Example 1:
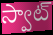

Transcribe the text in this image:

స్వాట్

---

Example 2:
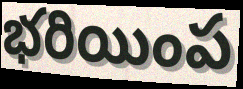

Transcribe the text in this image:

భరియింప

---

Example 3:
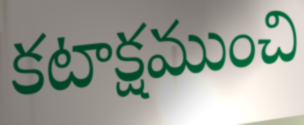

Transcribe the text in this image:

కటాక్షముంచి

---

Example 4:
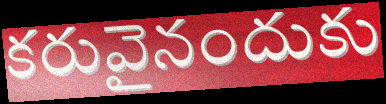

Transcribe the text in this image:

కరువైనందుకు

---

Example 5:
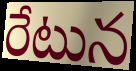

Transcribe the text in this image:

రేటున